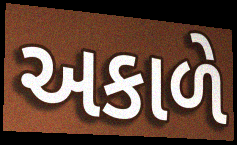
અકાળે